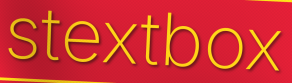
stextbox